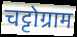
चट्टोग्राम